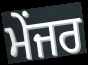
ਮੇਂਜਰ